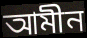
আমীন